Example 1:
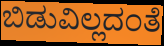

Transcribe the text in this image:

ಬಿಡುವಿಲ್ಲದಂತೆ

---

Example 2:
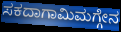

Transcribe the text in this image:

ಸಕದಾಗಾಮಿಮಗ್ಗೇನ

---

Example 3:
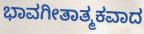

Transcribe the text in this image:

ಭಾವಗೀತಾತ್ಮಕವಾದ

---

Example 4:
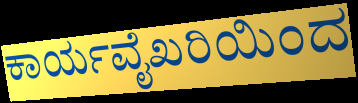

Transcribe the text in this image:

ಕಾರ್ಯವೈಖರಿಯಿಂದ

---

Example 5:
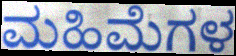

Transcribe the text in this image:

ಮಹಿಮೆಗಳ